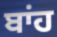
ਬਾਂਹ